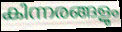
കിന്നരങ്ങളും